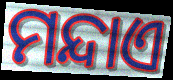
ମନ୍ଦାଏ